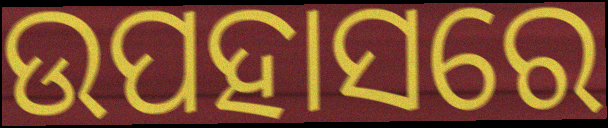
ଉପହାସରେ